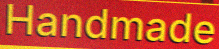
Handmade